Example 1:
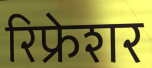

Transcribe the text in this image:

रिफ्रेशर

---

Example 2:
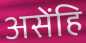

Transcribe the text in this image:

असेंहि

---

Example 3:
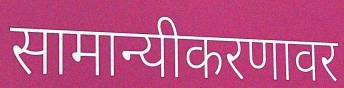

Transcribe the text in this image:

सामान्यीकरणावर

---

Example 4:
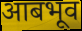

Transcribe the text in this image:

आबभूव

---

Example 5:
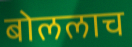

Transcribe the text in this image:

बोललाच